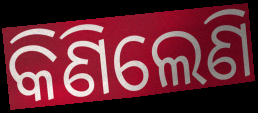
କିଣିଲେଣି